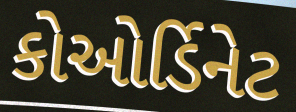
કોઓર્ડિનેટ